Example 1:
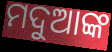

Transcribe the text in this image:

ମଦୁଆଙ୍କ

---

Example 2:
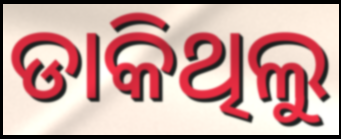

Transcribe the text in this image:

ଡାକିଥିଲୁ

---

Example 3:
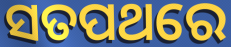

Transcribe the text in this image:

ସତପଥରେ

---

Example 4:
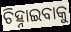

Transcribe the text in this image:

ଚିହ୍ନାଇବାକୁ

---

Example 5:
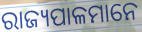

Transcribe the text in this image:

ରାଜ୍ୟପାଳମାନେ